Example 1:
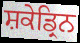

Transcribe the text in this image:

ਸ਼ਕੇਡ੍ਰਿਨ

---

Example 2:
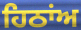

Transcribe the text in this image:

ਹਿਠਾਂਅ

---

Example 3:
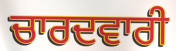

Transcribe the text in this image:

ਚਾਰਦਵਾਰੀ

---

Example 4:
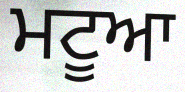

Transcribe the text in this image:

ਮਟੂਆ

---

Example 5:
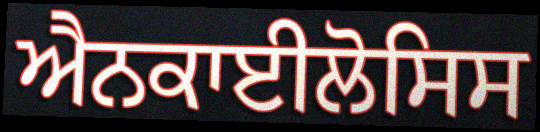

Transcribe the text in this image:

ਐਨਕਾਈਲੋਸਿਸ